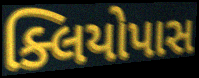
ક્લિયોપાસ